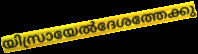
യിസ്രായേൽദേശത്തേക്കു